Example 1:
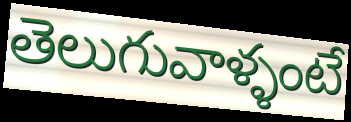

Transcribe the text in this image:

తెలుగువాళ్ళంటే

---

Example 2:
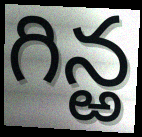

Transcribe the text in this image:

గిన్ఱ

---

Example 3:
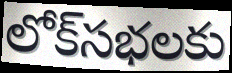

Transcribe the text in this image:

లోక్‌సభలకు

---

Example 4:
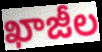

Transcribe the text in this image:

ఖాజీల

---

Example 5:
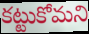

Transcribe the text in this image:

కట్టుకోమని